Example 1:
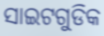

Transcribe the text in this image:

ସାଇଟଗୁଡିକ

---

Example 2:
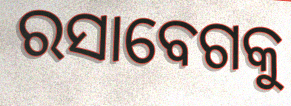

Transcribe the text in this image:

ରସାବେଗକୁ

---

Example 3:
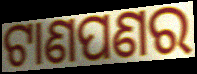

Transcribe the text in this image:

ଟାଣପଣର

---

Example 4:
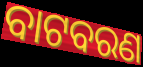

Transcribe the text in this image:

ବାଟବରଣ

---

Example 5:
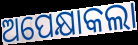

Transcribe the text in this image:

ଅପେକ୍ଷାକଲା